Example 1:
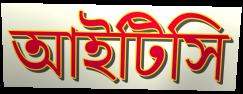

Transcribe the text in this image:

আইটিসি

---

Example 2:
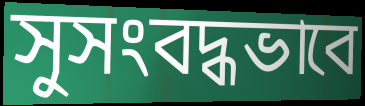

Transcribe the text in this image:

সুসংবদ্ধভাবে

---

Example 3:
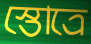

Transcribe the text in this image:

স্তোত্রে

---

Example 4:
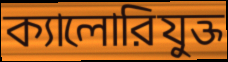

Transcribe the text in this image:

ক্যালোরিযুক্ত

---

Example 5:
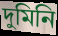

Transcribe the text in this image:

দুমিনি